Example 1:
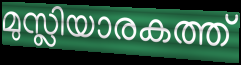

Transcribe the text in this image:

മുസ്ലിയാരകത്ത്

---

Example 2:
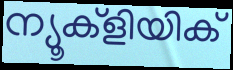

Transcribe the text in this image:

ന്യൂക്ളിയിക്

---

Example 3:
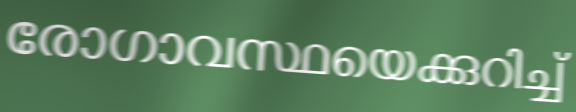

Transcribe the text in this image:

രോഗാവസ്ഥയെക്കുറിച്ച്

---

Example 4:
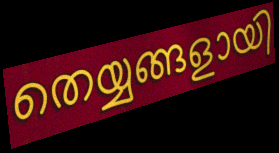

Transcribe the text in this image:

തെയ്യങ്ങളായി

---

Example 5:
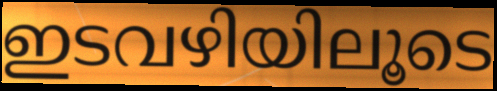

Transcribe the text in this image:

ഇടവഴിയിലൂടെ